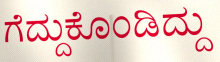
ಗೆದ್ದುಕೊಂಡಿದ್ದು